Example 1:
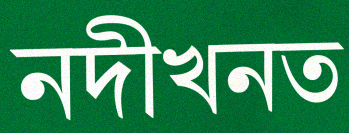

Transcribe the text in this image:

নদীখনত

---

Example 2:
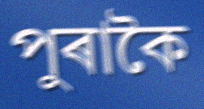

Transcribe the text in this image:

পুৰাকৈ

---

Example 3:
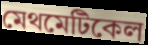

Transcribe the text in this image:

মেথমেটিকেল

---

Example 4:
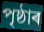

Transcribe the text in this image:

পৃষ্ঠাৰ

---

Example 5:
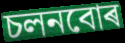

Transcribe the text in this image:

চলনবোৰ